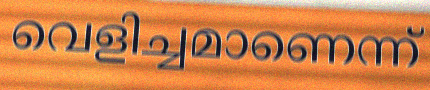
വെളിച്ചമാണെന്ന്